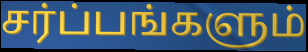
சர்ப்பங்களும்